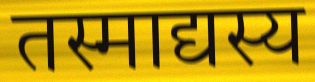
तस्माद्यस्य